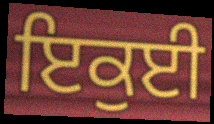
ਇਕੁਈ